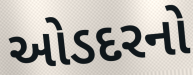
ઓડદરનો